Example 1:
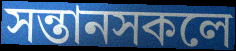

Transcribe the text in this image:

সন্তানসকলে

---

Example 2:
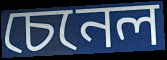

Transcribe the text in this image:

চেনেল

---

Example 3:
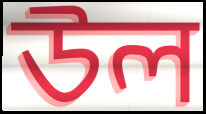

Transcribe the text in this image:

উল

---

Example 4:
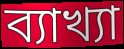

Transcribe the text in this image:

ব্যাখ্যা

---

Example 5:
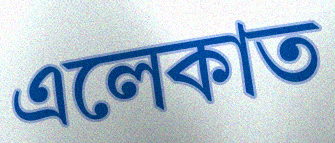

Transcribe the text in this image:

এলেকাত